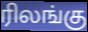
ரிலங்கு